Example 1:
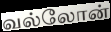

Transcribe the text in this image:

வல்லோன்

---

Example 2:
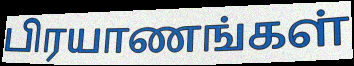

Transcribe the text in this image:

பிரயாணங்கள்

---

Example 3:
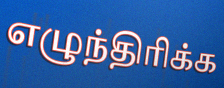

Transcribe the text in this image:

எழுந்திரிக்க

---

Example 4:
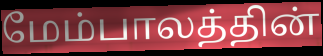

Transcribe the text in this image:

மேம்பாலத்தின்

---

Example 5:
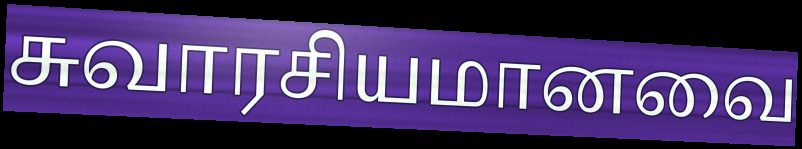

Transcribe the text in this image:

சுவாரசியமானவை